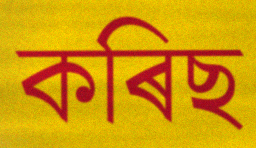
কৰিছ